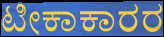
ಟೀಕಾಕಾರರ